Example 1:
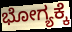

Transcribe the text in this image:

ಭೋಗ್ಯಕ್ಕೆ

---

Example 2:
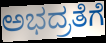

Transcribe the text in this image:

ಅಭದ್ರತೆಗೆ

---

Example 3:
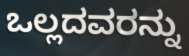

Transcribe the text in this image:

ಒಲ್ಲದವರನ್ನು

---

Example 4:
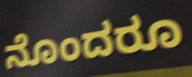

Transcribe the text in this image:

ನೊಂದರೂ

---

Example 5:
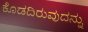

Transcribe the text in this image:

ಕೊಡದಿರುವುದನ್ನು